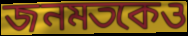
জনমতকেও